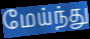
மேய்ந்து